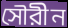
সৌরীন